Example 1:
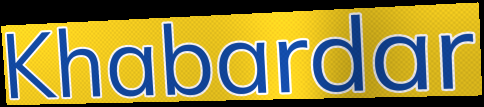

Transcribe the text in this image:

Khabardar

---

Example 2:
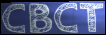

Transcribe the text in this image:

CBCT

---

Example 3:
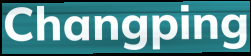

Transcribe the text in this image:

Changping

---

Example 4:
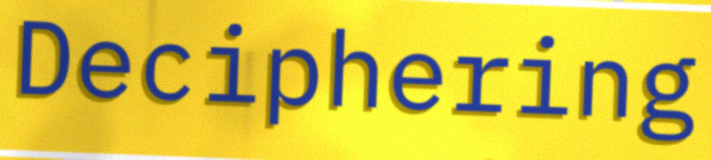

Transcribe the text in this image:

Deciphering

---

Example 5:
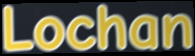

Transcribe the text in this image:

Lochan